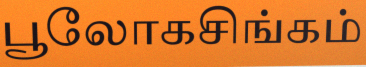
பூலோகசிங்கம்